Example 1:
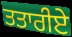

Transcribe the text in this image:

ਤਤਾਰੀਏ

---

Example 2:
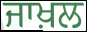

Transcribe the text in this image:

ਜਾਖ਼ਲ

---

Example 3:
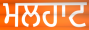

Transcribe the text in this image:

ਮਲਹਾਟ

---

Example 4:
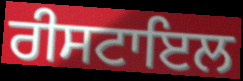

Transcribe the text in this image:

ਰੀਸਟਾਇਲ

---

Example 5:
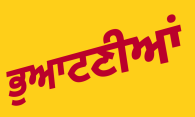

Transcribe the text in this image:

ਭੁਆਟਣੀਆਂ